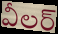
వీలర్